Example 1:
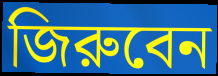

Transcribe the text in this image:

জিরুবেন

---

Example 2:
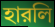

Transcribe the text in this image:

হারলি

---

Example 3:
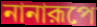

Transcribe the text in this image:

নানারূপে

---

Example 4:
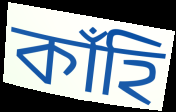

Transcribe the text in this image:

কাঁহি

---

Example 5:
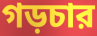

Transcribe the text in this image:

গড়চার